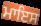
ਮਾਇਸ